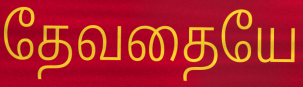
தேவதையே